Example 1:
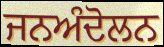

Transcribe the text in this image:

ਜਨਅੰਦੋਲਨ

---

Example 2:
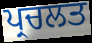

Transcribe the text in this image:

ਪ੍ਰਚਲਤ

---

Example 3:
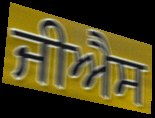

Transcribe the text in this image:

ਜੀਐਸ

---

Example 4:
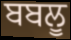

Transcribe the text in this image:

ਬਬਲੂ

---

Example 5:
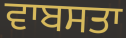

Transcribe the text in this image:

ਵਾਬਸਤਾ